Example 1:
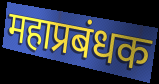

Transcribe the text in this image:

महाप्रबंधक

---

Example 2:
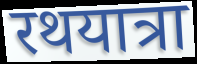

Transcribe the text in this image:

रथयात्रा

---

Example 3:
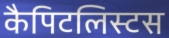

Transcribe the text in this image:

कैपिटलिस्टस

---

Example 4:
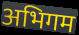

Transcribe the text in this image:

अभिगम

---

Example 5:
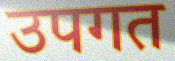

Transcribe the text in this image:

उपगत